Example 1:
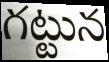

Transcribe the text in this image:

గట్టున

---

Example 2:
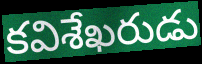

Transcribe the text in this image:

కవిశేఖరుడు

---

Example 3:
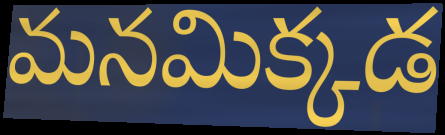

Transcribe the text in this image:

మనమిక్కడ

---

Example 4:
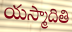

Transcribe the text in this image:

యస్మాదితి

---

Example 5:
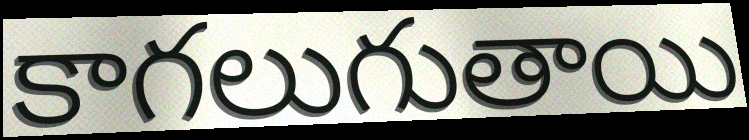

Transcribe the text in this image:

కాగలుగుతాయి